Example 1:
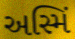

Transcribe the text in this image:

અસ્મિં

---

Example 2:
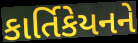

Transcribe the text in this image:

કાર્તિકેયનને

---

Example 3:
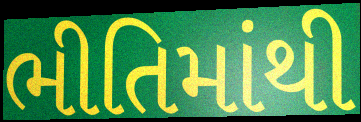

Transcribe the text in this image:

ભીતિમાંથી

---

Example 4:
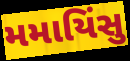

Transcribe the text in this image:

મમાયિંસુ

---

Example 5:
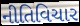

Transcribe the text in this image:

નીતિવિચાર